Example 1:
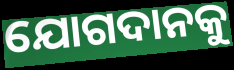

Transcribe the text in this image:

ଯୋଗଦାନକୁ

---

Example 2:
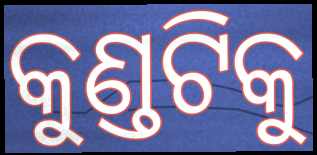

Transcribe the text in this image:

କୁଣ୍ଡଟିକୁ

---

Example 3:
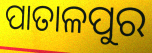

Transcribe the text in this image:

ପାତାଳପୁର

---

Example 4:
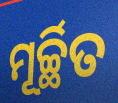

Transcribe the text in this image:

ମୂର୍ଚ୍ଛିତ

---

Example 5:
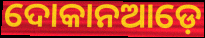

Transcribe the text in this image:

ଦୋକାନଆଡ଼େ